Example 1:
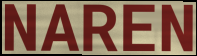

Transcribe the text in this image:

NAREN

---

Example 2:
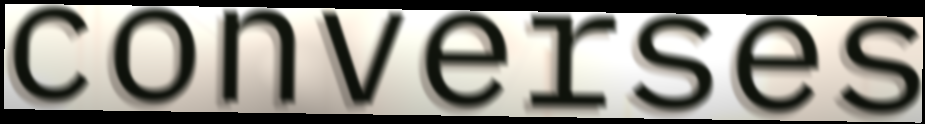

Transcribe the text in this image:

converses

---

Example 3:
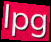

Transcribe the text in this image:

lpg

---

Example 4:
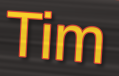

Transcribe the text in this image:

Tim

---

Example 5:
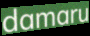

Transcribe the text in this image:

damaru